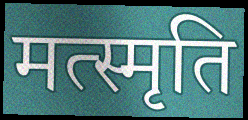
मत्स्मृति